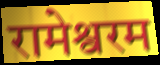
रामेश्वरम